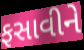
ફસાવીને